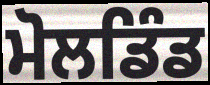
ਮੋਲਡਿੰਡ